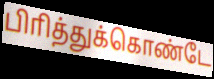
பிரித்துக்கொண்டே